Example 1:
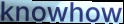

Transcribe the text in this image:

knowhow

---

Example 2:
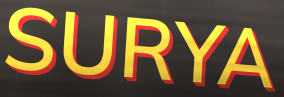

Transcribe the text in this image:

SURYA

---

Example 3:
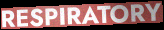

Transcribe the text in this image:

RESPIRATORY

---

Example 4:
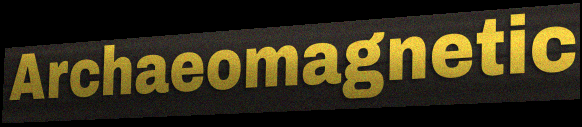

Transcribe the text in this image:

Archaeomagnetic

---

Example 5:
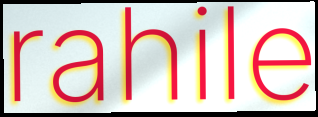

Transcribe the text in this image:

rahile